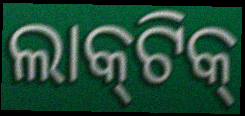
ଲାକ୍‌ଟିକ୍